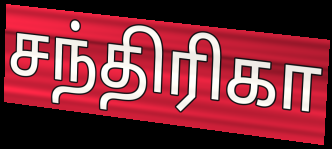
சந்திரிகா